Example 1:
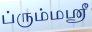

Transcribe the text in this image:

ப்ரும்மஸ்ரீ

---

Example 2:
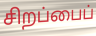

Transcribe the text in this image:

சிறப்பைப்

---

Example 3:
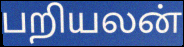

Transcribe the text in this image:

பறியலன்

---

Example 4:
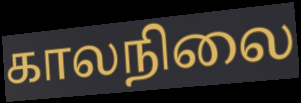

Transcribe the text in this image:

காலநிலை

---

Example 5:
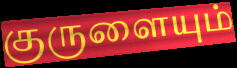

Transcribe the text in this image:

குருளையும்